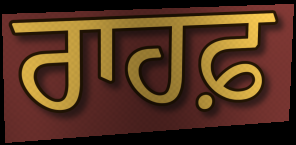
ਰਾਹਫ਼